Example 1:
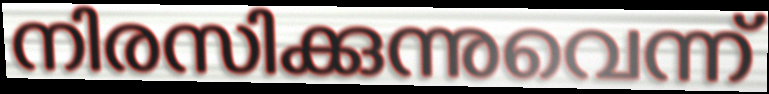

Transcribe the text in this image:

നിരസിക്കുന്നുവെന്ന്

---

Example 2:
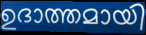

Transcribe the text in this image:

ഉദാത്തമായി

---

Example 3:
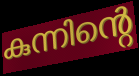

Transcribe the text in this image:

കുന്നിന്റെ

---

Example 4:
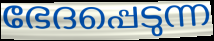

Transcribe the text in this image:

ഭേദപ്പെടുന്ന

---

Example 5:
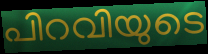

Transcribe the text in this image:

പിറവിയുടെ